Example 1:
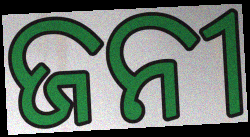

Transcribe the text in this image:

ଜନୀ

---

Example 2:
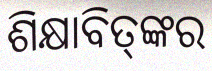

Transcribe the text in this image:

ଶିକ୍ଷାବିତ୍‌ଙ୍କର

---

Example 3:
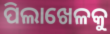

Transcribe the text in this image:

ପିଲାଖେଳକୁ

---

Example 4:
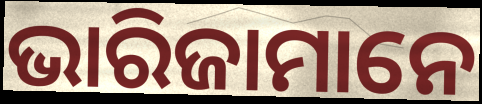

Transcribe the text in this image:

ଭାରିଜାମାନେ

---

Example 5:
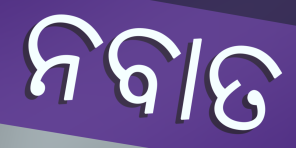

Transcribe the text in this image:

ନବାତ